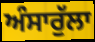
ਅੰਸਾਰੁੱਲਾ